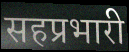
सहप्रभारी